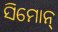
ସିମୋନ୍